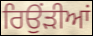
ਰਿਉਂੜੀਆਂ